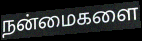
நன்மைகளை